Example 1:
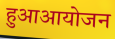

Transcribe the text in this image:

हुआआयोजन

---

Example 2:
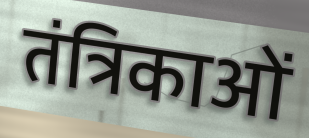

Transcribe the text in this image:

तंत्रिकाओं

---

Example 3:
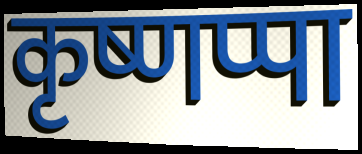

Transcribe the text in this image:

कृष्‍णप्‍पा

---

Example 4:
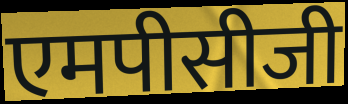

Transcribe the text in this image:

एमपीसीजी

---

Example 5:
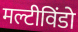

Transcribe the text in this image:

मल्टीविंडो